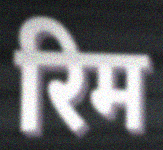
रिम